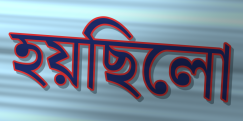
হয়ছিলো